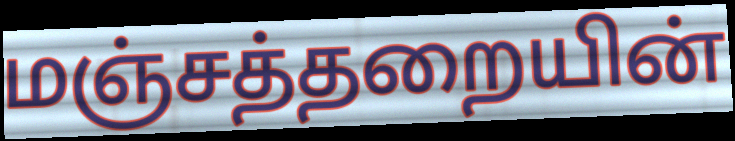
மஞ்சத்தறையின்